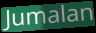
Jumalan